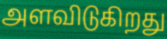
அளவிடுகிறது